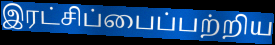
இரட்சிப்பைப்பற்றிய